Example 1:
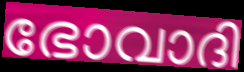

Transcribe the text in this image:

ഭോവാദി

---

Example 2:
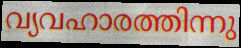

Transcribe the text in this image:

വ്യവഹാരത്തിന്നു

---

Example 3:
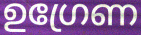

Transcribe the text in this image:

ഉഗ്രേണ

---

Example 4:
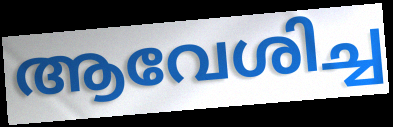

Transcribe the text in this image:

ആവേശിച്ച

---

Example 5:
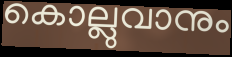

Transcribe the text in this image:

കൊല്ലുവാനും